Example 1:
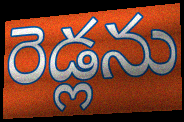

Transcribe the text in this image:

రెడ్లను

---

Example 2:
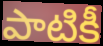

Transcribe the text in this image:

పాటికీ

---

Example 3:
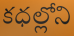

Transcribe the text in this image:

కధల్లోని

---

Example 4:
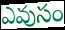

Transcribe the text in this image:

ఎవుసం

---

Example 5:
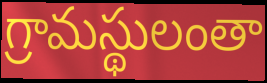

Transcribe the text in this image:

గ్రామస్థులంతా